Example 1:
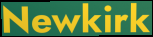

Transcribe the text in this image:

Newkirk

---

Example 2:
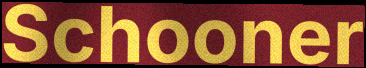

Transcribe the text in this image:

Schooner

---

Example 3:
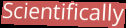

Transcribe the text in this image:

Scientifically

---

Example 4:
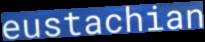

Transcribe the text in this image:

eustachian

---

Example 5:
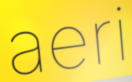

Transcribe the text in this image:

aeri